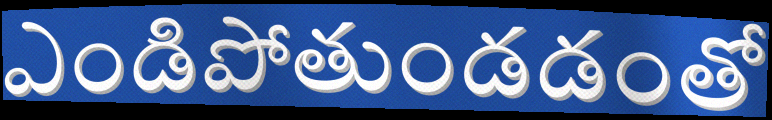
ఎండిపోతుండడంతో